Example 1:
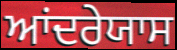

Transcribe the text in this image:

ਆਂਦਰੇਯਾਸ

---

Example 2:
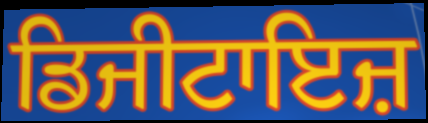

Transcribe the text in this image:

ਡਿਜੀਟਾਇਜ਼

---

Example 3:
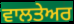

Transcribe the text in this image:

ਵਾਲਤੇਅਰ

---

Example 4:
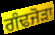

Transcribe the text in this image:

ਗੰਢਜੋੜਾ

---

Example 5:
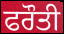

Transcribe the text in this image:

ਫਰੌਤੀ